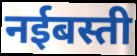
नईबस्ती